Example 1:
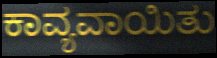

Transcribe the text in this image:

ಕಾವ್ಯವಾಯಿತು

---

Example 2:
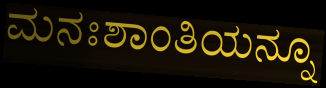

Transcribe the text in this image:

ಮನಃಶಾಂತಿಯನ್ನೂ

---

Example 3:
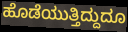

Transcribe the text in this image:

ಹೊಡೆಯುತ್ತಿದ್ದುದೂ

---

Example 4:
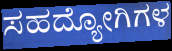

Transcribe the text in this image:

ಸಹದ್ಯೋಗಿಗಳ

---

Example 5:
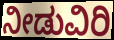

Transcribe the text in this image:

ನೀಡುವಿರಿ